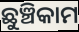
ଛୁଞ୍ଚିକାମ